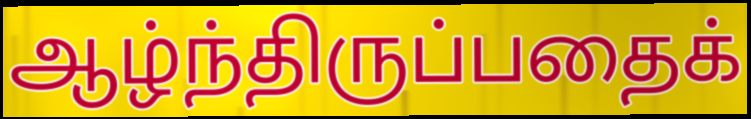
ஆழ்ந்திருப்பதைக்